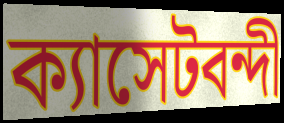
ক্যাসেটবন্দী